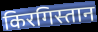
किरगिस्तान